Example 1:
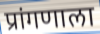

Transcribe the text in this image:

प्रांगणाला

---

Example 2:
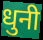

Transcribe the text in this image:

धुनी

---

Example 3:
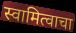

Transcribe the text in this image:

स्वामित्वाचा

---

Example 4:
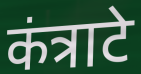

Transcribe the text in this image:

कंत्राटे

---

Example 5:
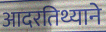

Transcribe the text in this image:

आदरतिथ्याने